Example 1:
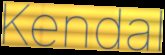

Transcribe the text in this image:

Kendal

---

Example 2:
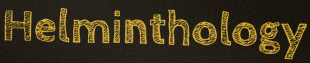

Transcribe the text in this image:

Helminthology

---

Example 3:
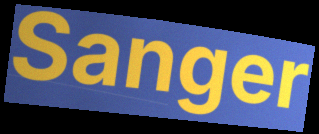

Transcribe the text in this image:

Sanger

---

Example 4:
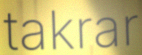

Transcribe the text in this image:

takrar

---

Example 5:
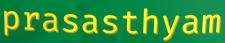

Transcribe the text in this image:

prasasthyam